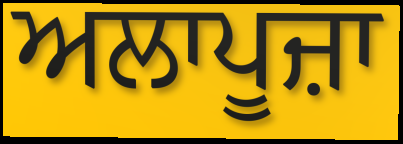
ਅਲਾਪੂਜ਼ਾ